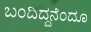
ಬಂದಿದ್ದನೆಂದೂ